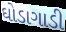
ઘોડાગાડી